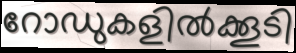
റോഡുകളിൽക്കൂടി